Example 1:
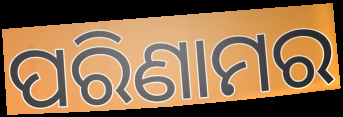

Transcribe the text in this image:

ପରିଣାମର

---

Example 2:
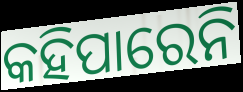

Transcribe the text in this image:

କହିପାରେନି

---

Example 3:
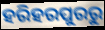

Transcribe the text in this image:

ହରିହରପୁରରୁ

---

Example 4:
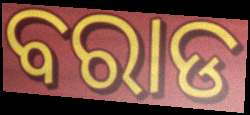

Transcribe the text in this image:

ବରାଡ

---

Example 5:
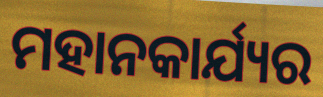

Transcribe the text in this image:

ମହାନକାର୍ଯ୍ୟର